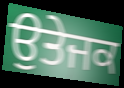
ਉਤੇਜਕ